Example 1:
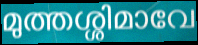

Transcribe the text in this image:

മുത്തശ്ശിമാവേ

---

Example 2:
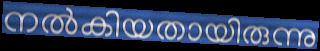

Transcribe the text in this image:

നൽകിയതായിരുന്നു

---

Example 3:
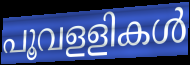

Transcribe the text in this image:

പൂവളളികൾ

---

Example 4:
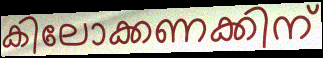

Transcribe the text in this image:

കിലോക്കണക്കിന്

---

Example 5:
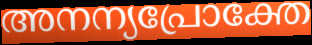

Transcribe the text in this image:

അനന്യപ്രോക്തേ